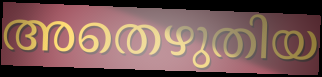
അതെഴുതിയ